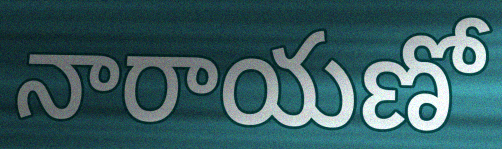
నారాయణో